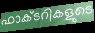
ഫാക്ടറികളുടെ